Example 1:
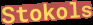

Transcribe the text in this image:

Stokols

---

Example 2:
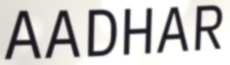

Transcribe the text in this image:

AADHAR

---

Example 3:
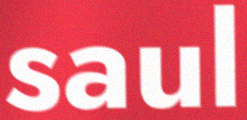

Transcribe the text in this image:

saul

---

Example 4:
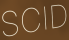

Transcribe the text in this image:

SCID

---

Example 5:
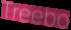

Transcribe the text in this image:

Treebo